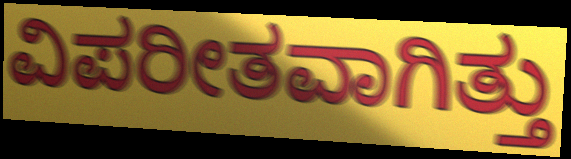
ವಿಪರೀತವಾಗಿತ್ತು